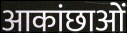
आकांछाओं